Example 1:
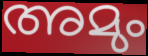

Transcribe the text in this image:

അമും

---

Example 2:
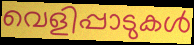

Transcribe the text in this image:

വെളിപ്പാടുകൾ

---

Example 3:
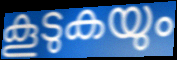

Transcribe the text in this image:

കൂടുകയും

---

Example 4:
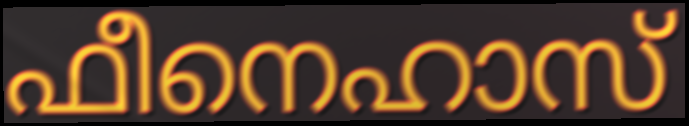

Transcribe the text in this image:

ഫീനെഹാസ്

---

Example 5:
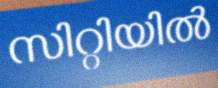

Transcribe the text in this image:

സിറ്റിയിൽ